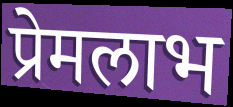
प्रेमलाभ